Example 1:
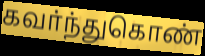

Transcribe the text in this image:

கவர்ந்துகொண்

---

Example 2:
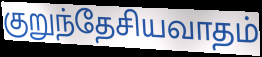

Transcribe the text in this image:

குறுந்தேசியவாதம்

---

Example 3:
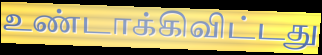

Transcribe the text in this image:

உண்டாக்கிவிட்டது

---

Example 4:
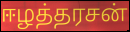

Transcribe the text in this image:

ஈழத்தரசன்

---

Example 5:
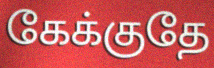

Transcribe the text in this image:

கேக்குதே